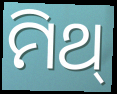
ମିଥ୍